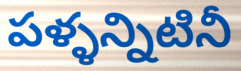
పళ్ళన్నిటినీ